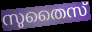
സുതൈസ്